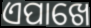
ଏପାଖେ